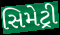
સિમેટ્રી